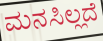
ಮನಸಿಲ್ಲದೆ